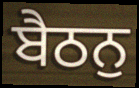
ਬੈਠਨੁ